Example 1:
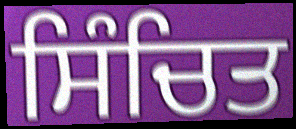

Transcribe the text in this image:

ਸਿੰਚਿਤ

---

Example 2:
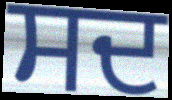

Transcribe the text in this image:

ਸਦ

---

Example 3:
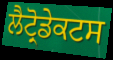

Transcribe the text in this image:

ਲੈਟ੍ਰੋਡੇਕਟਸ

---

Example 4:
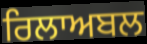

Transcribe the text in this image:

ਰਿਲਾਅਬਲ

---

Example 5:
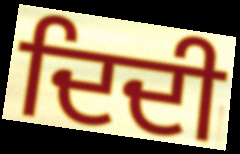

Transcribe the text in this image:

ਦਿਦੀ